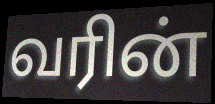
வரின்